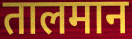
तालमान